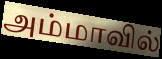
அம்மாவில்